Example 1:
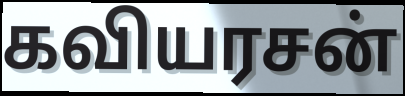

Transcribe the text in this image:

கவியரசன்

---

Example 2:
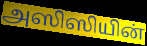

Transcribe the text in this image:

அஸிஸியின்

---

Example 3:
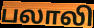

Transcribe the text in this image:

பலாலி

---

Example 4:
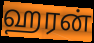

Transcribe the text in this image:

ஹரன்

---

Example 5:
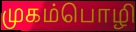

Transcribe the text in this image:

முகம்பொழி